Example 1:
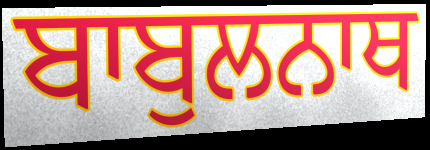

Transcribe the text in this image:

ਬਾਬੁਲਨਾਥ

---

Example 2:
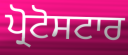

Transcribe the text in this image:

ਪ੍ਰੋਟੋਸਟਾਰ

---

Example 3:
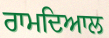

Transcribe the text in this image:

ਰਾਮਦਿਆਲ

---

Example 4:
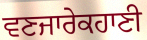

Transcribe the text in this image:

ਵਣਜਾਰੇਕਹਾਣੀ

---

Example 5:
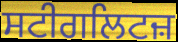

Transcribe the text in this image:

ਸਟੀਗਲਿਟਜ਼